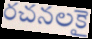
రచనలకై